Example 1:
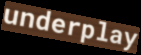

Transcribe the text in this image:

underplay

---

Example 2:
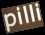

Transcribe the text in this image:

pilli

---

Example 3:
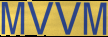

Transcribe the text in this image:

MVVM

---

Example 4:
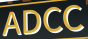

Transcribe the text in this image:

ADCC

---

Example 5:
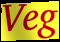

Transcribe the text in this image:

Veg